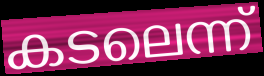
കടലെന്ന്